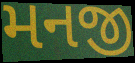
મનજી